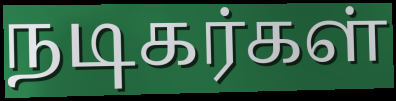
நடிகர்கள்